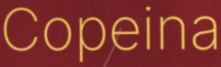
Copeina